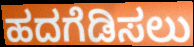
ಹದಗೆಡಿಸಲು